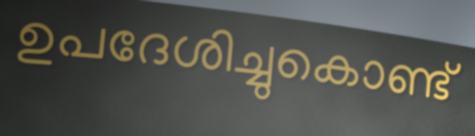
ഉപദേശിച്ചുകൊണ്ട്